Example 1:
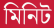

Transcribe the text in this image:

মিনিট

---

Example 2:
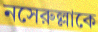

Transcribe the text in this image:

নসেরুল্লাকে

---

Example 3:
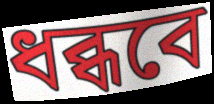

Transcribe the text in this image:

ধব্ধবে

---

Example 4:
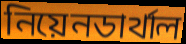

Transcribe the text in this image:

নিয়েনডার্থাল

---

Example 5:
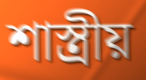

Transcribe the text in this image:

শাস্ত্রীয়